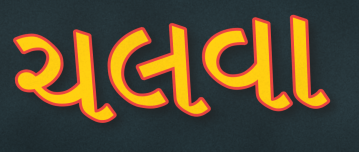
ચલવા